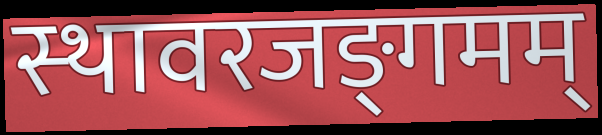
स्थावरजङ्गमम्